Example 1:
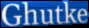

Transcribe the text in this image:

Ghutke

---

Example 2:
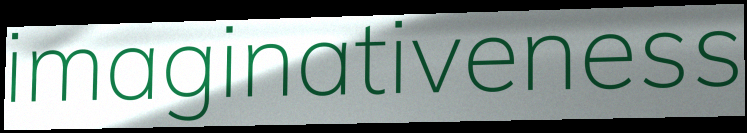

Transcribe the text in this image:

imaginativeness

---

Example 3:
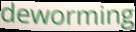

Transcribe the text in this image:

deworming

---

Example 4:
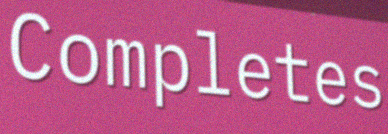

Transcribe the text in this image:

Completes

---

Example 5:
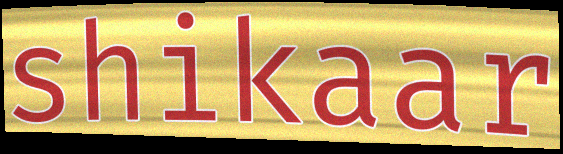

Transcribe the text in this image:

shikaar